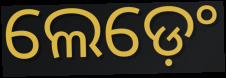
ଲେଡ଼େଂ